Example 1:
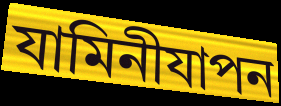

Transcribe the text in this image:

যামিনীযাপন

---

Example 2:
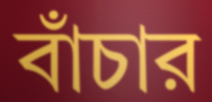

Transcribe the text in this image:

বাঁচার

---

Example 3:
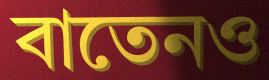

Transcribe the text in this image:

বাতেনও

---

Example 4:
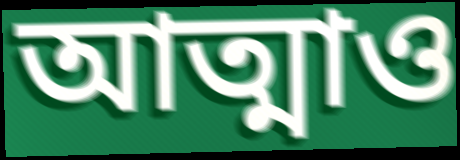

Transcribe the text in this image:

আত্মাও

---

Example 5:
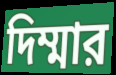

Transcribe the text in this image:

দিম্মার